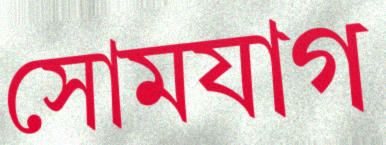
সোমযাগ